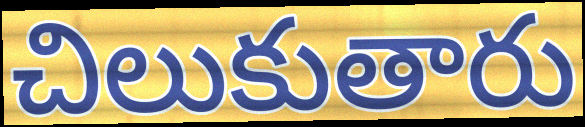
చిలుకుతారు